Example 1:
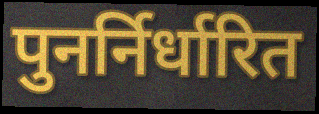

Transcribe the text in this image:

पुनर्निर्धारित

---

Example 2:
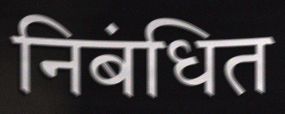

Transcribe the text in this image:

निबंधित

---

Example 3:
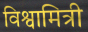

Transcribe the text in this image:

विश्वामित्री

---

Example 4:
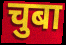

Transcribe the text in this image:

चुबा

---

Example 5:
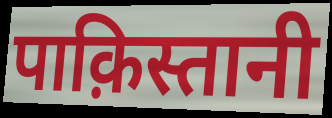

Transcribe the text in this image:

पाक़िस्तानी